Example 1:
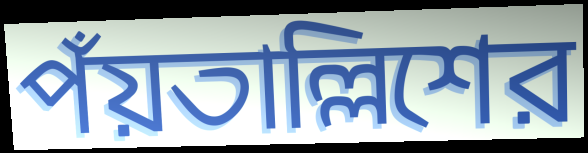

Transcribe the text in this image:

পঁয়তাল্লিশের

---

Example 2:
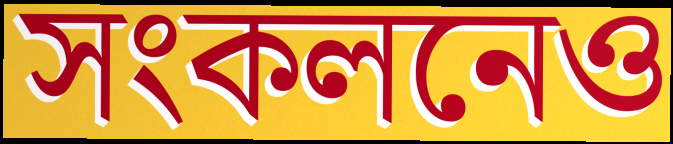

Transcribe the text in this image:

সংকলনেও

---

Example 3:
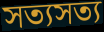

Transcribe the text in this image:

সত্যসত্য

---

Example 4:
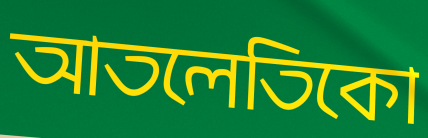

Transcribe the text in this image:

আতলেতিকো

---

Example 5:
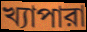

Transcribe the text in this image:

খ্যাপারা